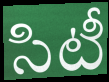
సిటీ